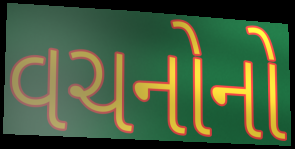
વચનોનો